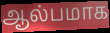
ஆல்பமாக